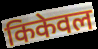
किकेवल